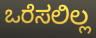
ಒರೆಸಲಿಲ್ಲ